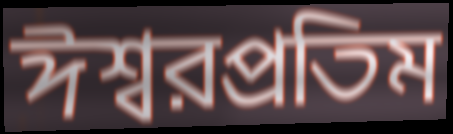
ঈশ্বরপ্রতিম